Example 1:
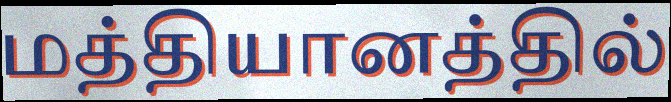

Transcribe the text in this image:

மத்தியானத்தில்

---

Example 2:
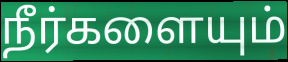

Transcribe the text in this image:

நீர்களையும்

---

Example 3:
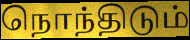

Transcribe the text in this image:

நொந்திடும்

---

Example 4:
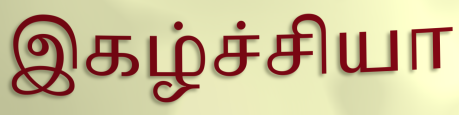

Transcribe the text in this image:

இகழ்ச்சியா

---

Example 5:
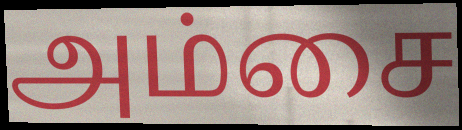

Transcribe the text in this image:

அம்சை